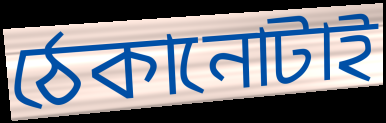
ঠেকানোটাই